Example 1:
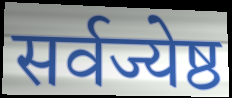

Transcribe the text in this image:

सर्वज्येष्ठ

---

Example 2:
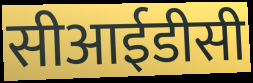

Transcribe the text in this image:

सीआईडीसी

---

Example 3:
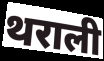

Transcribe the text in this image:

थराली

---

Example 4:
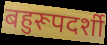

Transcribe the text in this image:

बहुरूपदर्शी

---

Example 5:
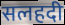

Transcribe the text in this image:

सलहदी